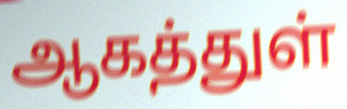
ஆகத்துள்